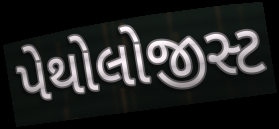
પેથોલોજીસ્ટ